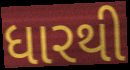
ધારથી